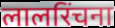
लालरिंचना